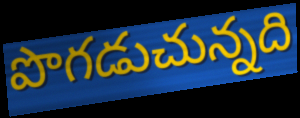
పొగడుచున్నది